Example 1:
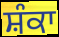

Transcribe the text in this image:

ਸ਼ੰਕਾ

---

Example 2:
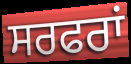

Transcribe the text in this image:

ਸਰਫਰਾਂ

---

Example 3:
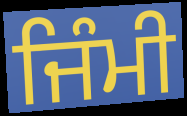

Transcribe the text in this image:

ਜਿੰਮੀ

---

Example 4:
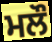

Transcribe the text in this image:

ਮਲੌ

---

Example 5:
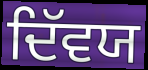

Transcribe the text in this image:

ਦਿੱਵਯ